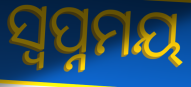
ସ୍ଵପ୍ନମୟ